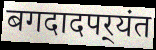
बगदादपर्यंत